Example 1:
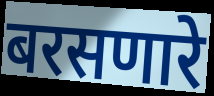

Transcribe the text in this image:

बरसणारे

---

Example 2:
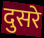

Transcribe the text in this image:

दुसरे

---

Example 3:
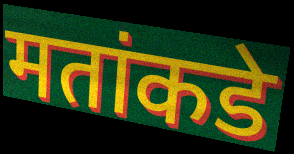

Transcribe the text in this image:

मतांकडे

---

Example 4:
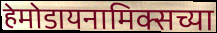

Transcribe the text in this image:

हेमोडायनामिक्सच्या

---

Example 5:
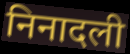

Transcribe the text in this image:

निनादली